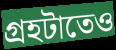
গ্রহটাতেও